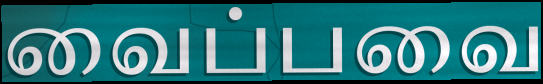
வைப்பவை